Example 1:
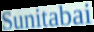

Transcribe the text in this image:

Sunitabai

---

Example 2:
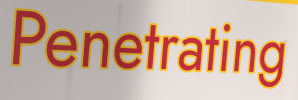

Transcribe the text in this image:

Penetrating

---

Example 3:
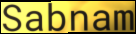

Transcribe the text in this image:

Sabnam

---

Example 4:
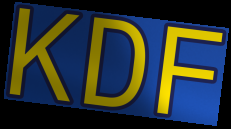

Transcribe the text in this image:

KDF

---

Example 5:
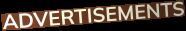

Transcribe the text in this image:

ADVERTISEMENTS